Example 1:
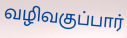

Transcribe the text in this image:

வழிவகுப்பார்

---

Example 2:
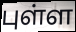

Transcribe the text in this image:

புள்ள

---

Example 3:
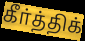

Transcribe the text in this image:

கீர்த்திக்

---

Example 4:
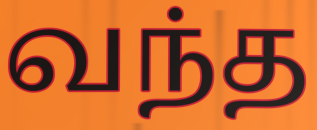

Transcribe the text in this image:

வந்த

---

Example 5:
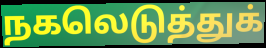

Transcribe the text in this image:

நகலெடுத்துக்